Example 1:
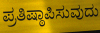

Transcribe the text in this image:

ಪ್ರತಿಷ್ಠಾಪಿಸುವುದು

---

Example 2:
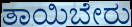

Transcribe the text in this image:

ತಾಯಿಬೇರು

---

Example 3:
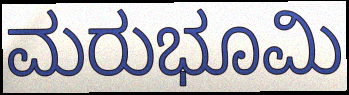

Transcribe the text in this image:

ಮರುಭೂಮಿ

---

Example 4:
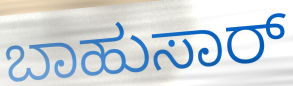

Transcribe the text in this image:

ಬಾಹುಸಾರ್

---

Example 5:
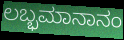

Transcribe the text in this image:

ಲಬ್ಭಮಾನಾನಂ